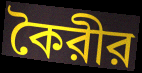
কৈরীর